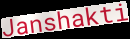
Janshakti